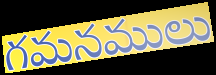
గమనములు